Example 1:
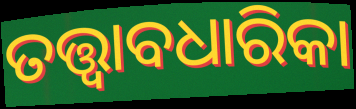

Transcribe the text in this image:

ତତ୍ତ୍ୱାବଧାରିକା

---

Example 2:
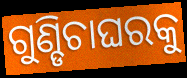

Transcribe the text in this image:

ଗୁଣ୍ଡିଚାଘରକୁ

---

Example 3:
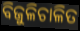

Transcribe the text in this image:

ବିଜୁଳିଚାଳିତ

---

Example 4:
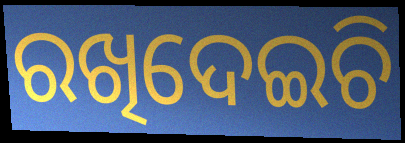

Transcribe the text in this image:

ରଖିଦେଇଚି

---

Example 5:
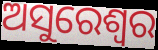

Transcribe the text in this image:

ଅସୁରେଶ୍ଵର